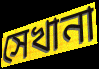
সেখানা